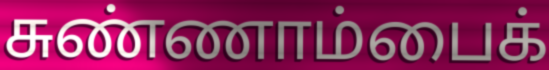
சுண்ணாம்பைக்